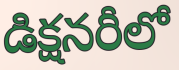
డిక్షనరీలో